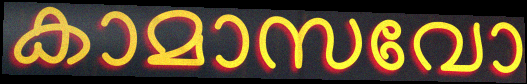
കാമാസവോ